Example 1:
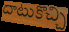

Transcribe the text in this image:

దాటుకొచ్చి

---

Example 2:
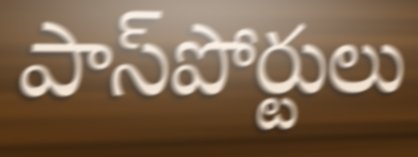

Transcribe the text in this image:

పాస్‌పోర్టులు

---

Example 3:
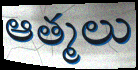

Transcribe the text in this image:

ఆత్మలు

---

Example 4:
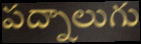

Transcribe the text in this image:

పద్నాలుగు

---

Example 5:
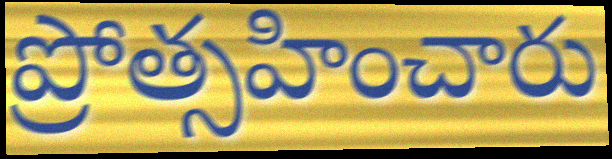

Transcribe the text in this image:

ప్రోత్సహించారు